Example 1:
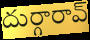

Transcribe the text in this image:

దుర్గారావ్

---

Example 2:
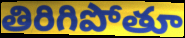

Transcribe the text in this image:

తిరిగిపోతూ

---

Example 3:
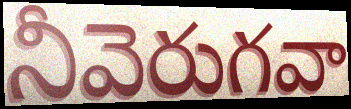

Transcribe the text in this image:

నీవెరుగవా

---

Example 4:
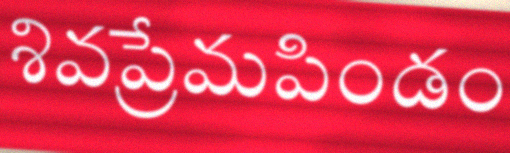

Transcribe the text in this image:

శివప్రేమపిండం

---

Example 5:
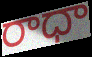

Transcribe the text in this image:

రాధా